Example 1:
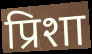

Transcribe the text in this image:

प्रिशा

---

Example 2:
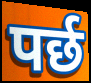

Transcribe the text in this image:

पर्छ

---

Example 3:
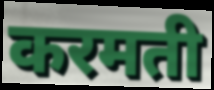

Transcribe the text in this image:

करमती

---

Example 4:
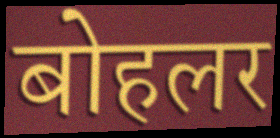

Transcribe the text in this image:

बोहलर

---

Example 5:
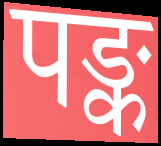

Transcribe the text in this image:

पङ्क